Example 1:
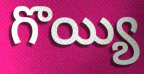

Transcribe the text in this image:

గొయ్యి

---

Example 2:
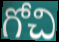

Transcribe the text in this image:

గోచి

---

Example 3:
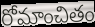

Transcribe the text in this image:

రోమాంచితం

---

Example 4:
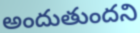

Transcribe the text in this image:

అందుతుందని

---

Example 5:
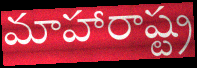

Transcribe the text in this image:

మాహారాష్ట్ర